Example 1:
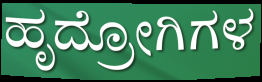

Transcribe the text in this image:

ಹೃದ್ರೋಗಿಗಳ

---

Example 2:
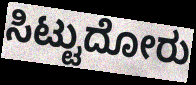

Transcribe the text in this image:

ಸಿಟ್ಟುದೋರು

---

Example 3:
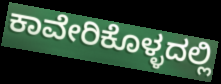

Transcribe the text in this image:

ಕಾವೇರಿಕೊಳ್ಳದಲ್ಲಿ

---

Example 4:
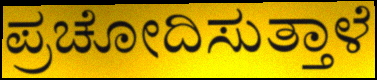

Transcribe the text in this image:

ಪ್ರಚೋದಿಸುತ್ತಾಳೆ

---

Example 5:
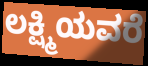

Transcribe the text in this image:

ಲಕ್ಷ್ಮಿಯವರೆ